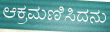
ಆಕ್ರಮಣಿಸಿದನು